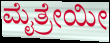
ಮೈತ್ರೇಯೀ